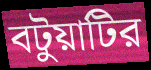
বটুয়াটির